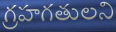
గ్రహగతులని